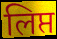
लिप्त